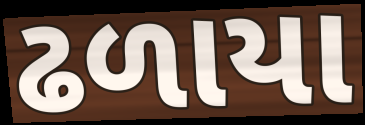
ઢળાયા